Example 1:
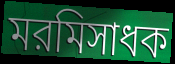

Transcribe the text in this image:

মরমিসাধক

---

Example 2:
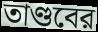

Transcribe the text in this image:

তাণ্ডবের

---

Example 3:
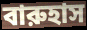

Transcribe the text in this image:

বারুহাস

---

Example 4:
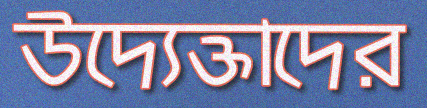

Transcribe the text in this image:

উদ্যেক্তাদের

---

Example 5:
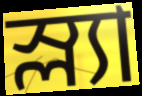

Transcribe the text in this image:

স্ল্যা